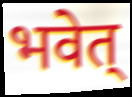
भवेत्